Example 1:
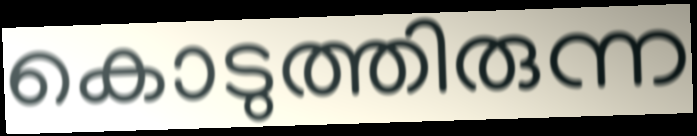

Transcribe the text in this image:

കൊടുത്തിരുന്ന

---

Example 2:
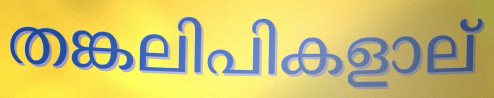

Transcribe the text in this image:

തങ്കലിപികളാല്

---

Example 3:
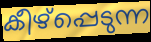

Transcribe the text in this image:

കീഴ്പ്പെടുന്ന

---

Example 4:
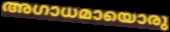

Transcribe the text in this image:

അഗാധമായൊരു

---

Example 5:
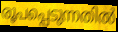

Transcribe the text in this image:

രൂപപ്പെടുന്നതിൽ